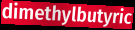
dimethylbutyric